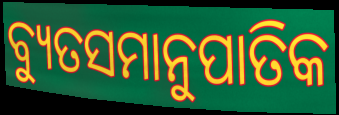
ବ୍ୟୁତସମାନୁପାତିକ